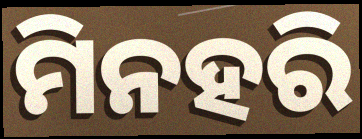
ମିନହରି